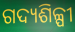
ଗଦ୍ୟଶିଳ୍ପୀ